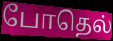
போதெல்